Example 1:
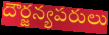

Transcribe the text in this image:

దౌర్జన్యపరులు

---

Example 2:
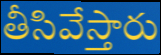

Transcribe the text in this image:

తీసివేస్తారు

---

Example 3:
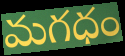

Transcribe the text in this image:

మగధం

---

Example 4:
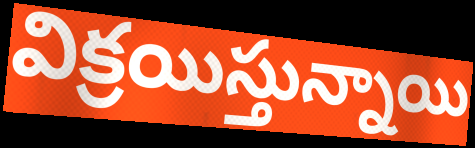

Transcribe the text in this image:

విక్రయిస్తున్నాయి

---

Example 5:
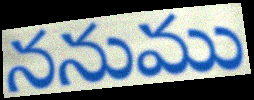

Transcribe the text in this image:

ననుము